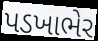
પડખાભેર